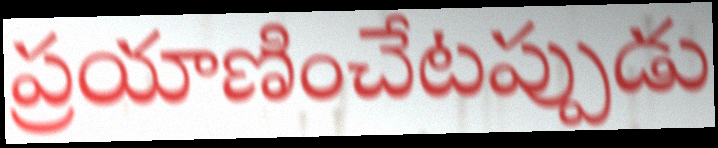
ప్రయాణించేటప్పుడు